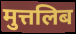
मुत्तलिब